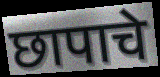
छापाचे